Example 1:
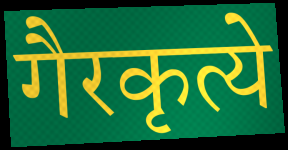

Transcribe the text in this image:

गैरकृत्ये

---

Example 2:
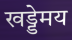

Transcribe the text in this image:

खड्डेमय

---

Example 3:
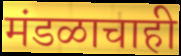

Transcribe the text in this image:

मंडळाचाही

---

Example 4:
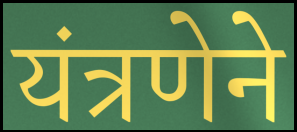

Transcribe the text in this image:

यंत्रणेने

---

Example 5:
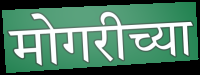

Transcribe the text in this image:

मोगरीच्या